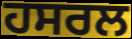
ਹਸਰਲ